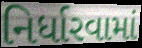
નિર્ધારવામાં